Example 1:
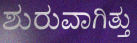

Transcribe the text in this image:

ಶುರುವಾಗಿತ್ತು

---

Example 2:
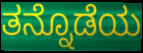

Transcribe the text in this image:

ತನ್ನೊಡೆಯ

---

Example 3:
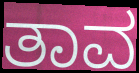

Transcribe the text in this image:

ತಾವ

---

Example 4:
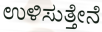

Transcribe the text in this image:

ಉಳಿಸುತ್ತೇನೆ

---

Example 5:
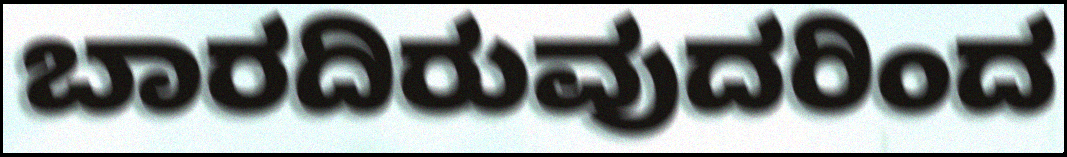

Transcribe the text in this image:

ಬಾರದಿರುವುದರಿಂದ